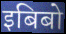
इबिबो